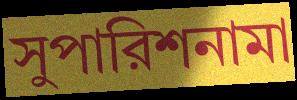
সুপারিশনামা